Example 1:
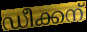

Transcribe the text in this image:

ഡീക്കന്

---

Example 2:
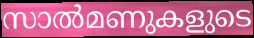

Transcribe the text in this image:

സാൽമണുകളുടെ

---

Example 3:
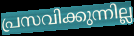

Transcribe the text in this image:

പ്രസവിക്കുന്നില്ല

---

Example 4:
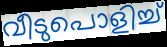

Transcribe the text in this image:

വീടുപൊളിച്ച്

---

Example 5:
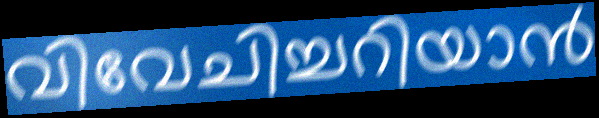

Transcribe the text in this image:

വിവേചിച്ചറിയാൻ